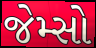
જેમ્સો